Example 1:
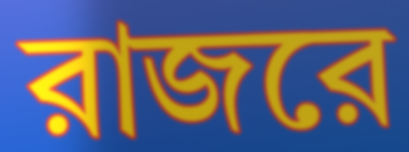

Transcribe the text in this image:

রাজরে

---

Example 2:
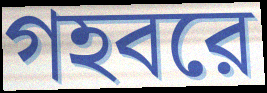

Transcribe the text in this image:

গহবরে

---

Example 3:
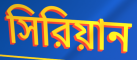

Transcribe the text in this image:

সিরিয়ান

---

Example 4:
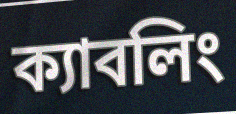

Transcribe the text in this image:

ক্যাবলিং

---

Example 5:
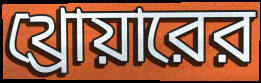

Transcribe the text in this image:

থ্রোয়ারের